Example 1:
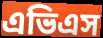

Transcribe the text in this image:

এভিএস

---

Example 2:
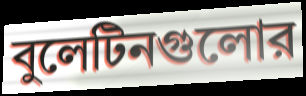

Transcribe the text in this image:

বুলেটিনগুলোর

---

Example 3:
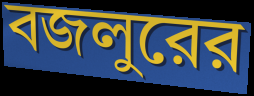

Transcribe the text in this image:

বজলুরের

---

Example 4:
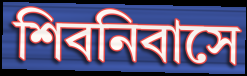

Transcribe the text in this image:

শিবনিবাসে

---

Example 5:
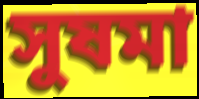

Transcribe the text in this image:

সুষমা